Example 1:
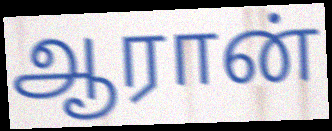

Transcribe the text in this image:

ஆரான்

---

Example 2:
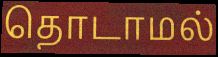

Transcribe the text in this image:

தொடாமல்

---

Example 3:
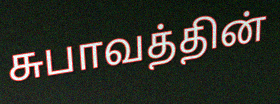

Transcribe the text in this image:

சுபாவத்தின்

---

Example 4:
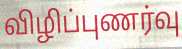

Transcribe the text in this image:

விழிப்புணர்வு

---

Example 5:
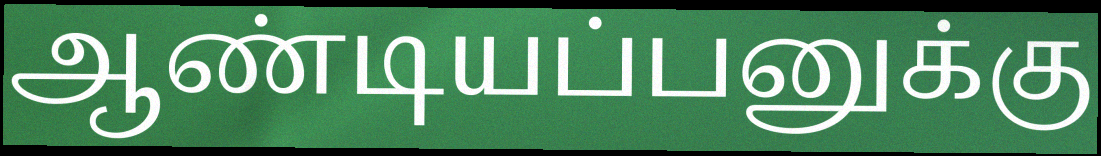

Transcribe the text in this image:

ஆண்டியப்பனுக்கு